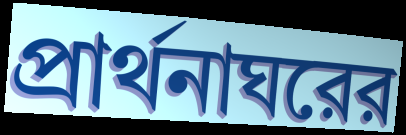
প্রার্থনাঘরের